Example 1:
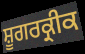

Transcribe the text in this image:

ਸ਼ੂਗਰਕ੍ਰੀਕ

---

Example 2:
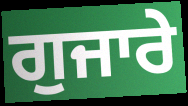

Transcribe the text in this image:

ਗੁਜਾਰੇ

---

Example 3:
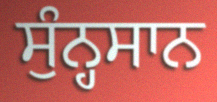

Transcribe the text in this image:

ਸੁੰਨ੍ਹਸਾਨ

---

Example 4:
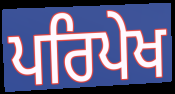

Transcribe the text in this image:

ਪਰਿਪੇਖ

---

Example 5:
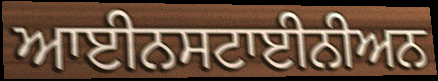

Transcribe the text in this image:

ਆਈਨਸਟਾਈਨੀਅਨ